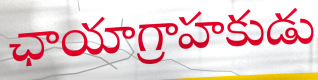
ఛాయాగ్రాహకుడు